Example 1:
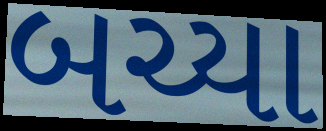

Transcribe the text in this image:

બચ્યા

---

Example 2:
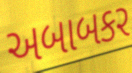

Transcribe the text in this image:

અબાબકર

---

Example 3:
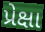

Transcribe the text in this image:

પ્રેક્ષા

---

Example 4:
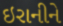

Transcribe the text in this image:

ઇરાનીને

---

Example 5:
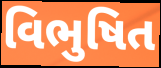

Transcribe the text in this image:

વિભુષિત